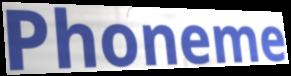
Phoneme